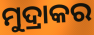
ମୁଦ୍ରାକର